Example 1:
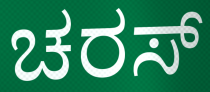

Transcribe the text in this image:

ಚರಸ್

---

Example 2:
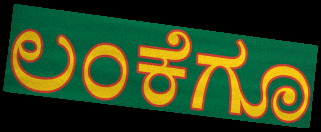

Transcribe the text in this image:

ಲಂಕೆಗೂ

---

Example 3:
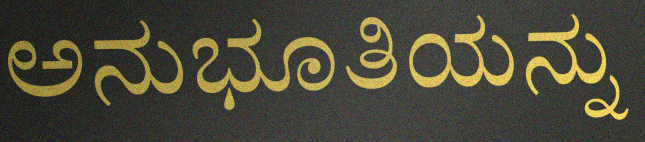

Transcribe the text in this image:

ಅನುಭೂತಿಯನ್ನು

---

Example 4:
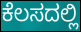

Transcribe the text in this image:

ಕೆಲಸದಲ್ಲಿ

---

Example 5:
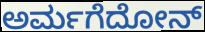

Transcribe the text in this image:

ಅರ್ಮಗೆದೋನ್